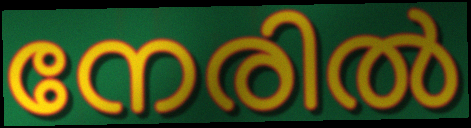
നേരിൽ